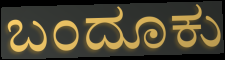
ಬಂದೂಕು